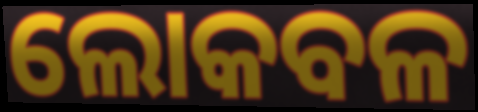
ଲୋକବଳ